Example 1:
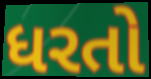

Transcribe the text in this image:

ધરતો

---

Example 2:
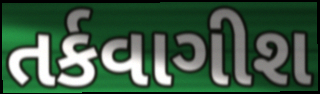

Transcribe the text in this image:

તર્કવાગીશ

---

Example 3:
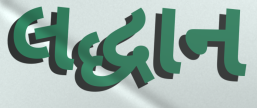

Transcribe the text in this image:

લદ્ધાન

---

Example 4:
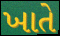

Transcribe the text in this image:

ખાતે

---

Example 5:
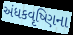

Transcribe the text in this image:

અંધકવૃષ્ણિના